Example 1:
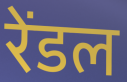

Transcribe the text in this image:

रेंडल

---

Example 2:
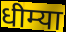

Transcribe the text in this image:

धीम्या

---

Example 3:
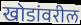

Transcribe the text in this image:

खोडांवरील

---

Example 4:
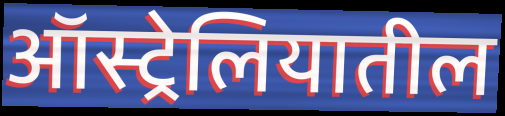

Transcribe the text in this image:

ऑस्ट्रेलियातील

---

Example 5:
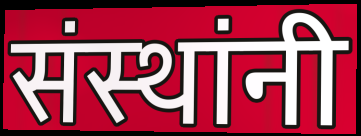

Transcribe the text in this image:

संस्थांनी